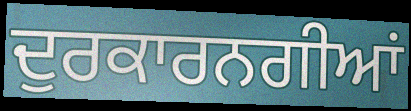
ਦੁਰਕਾਰਨਗੀਆਂ